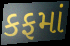
કફમાં